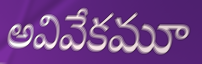
అవివేకమూ